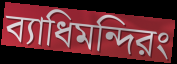
ব্যাধিমন্দিরং